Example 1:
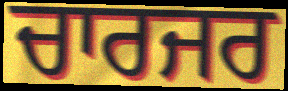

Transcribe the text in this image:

ਚਾਰਜਰ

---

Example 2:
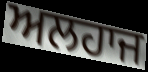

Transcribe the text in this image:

ਅਲਹਾਜ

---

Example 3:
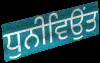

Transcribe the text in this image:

ਧੁਨੀਵਿਉਂਤ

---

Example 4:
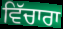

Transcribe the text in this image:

ਵਿੱਚਾਰਾ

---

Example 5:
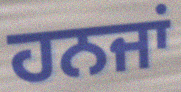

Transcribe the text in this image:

ਹਨਜਾਂ